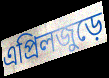
এপ্রিলজুড়ে